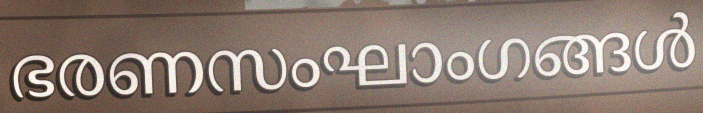
ഭരണസംഘാംഗങ്ങൾ